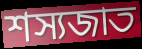
শস্যজাত